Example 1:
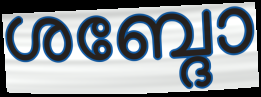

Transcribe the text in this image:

ശബ്ദോ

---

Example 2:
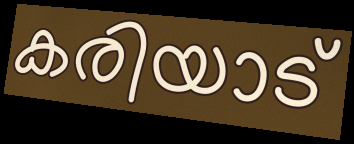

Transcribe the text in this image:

കരിയാട്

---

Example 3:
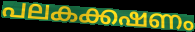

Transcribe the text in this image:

പലകക്കഷണം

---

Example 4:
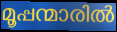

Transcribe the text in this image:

മൂപ്പന്മാരിൽ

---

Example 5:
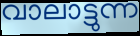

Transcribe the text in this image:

വാലാട്ടുന്ന